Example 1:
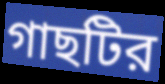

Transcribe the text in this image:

গাছটির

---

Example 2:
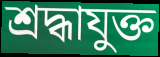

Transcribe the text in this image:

শ্রদ্ধাযুক্ত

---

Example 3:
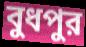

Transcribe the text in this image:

বুধপুর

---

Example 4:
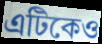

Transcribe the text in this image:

এটিকেও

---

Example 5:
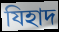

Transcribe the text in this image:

যিহাদ